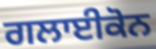
ਗਲਾਈਕੋਨ